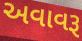
અવાવરૂ